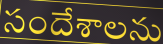
సందేశాలను